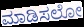
ಮಾಡಿಸಲೋ